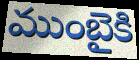
ముంబైకి